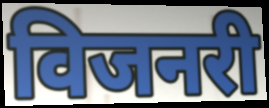
विजनरी